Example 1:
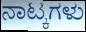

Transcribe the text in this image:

ನಾಟ್ಕಗಳು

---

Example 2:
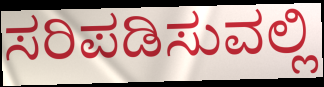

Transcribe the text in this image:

ಸರಿಪಡಿಸುವಲ್ಲಿ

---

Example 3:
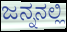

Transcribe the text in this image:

ಜನ್ನನಲ್ಲಿ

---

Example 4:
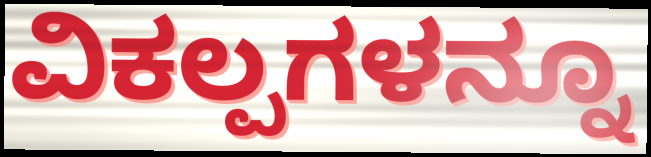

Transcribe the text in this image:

ವಿಕಲ್ಪಗಳನ್ನೂ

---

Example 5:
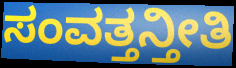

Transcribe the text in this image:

ಸಂವತ್ತನ್ತೀತಿ